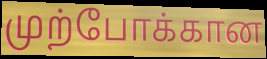
முற்போக்கான